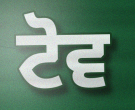
ਟੋਵ